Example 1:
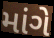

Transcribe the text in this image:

માંગે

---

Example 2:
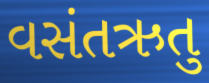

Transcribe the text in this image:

વસંતઋતુ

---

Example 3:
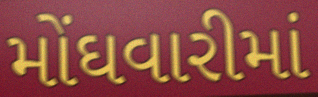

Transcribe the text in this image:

મોંઘવારીમાં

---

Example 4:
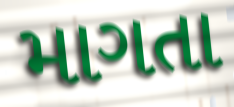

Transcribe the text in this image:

માગતા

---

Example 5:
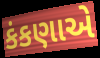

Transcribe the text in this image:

કંકણાએ